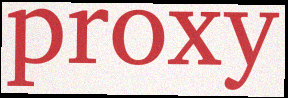
proxy